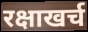
रक्षाखर्च